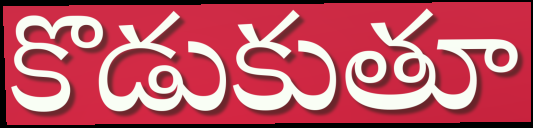
కొడుకుతూ